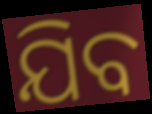
ଯିବ